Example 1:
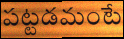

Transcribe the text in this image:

పట్టడమంటే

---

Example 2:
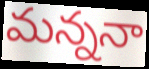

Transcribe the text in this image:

మన్ననా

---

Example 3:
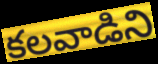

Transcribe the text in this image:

కలవాడిని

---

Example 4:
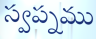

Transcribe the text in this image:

స్వప్నము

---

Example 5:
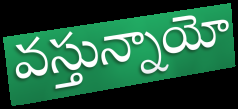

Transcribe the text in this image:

వస్తున్నాయో